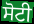
ਸੋਟੀ